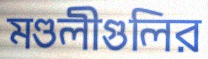
মণ্ডলীগুলির